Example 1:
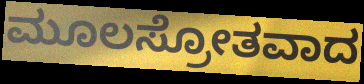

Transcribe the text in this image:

ಮೂಲಸ್ರೋತವಾದ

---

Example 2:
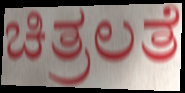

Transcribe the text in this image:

ಚಿತ್ರಲತೆ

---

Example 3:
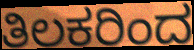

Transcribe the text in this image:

ತಿಲಕರಿಂದ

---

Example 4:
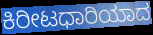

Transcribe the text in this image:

ಕಿರೀಟಧಾರಿಯಾದ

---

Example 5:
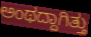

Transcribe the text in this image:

ಅಂಥದ್ದಾಗಿತ್ತು